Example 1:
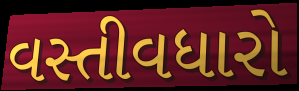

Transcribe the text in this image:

વસ્તીવધારો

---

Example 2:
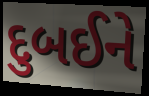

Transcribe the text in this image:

દુબઈને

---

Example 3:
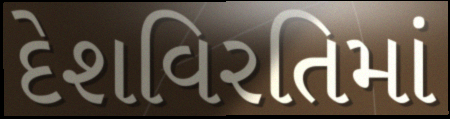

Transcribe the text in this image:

દેશવિરતિમાં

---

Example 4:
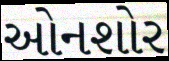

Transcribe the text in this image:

ઓનશોર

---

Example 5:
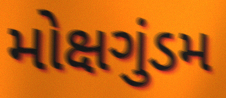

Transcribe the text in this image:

મોક્ષગુંડમ